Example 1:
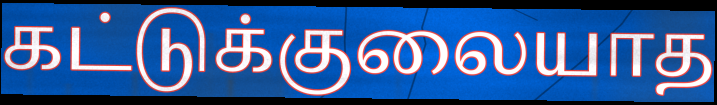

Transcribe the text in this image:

கட்டுக்குலையாத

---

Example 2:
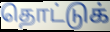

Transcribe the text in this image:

தொட்டுக்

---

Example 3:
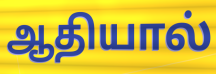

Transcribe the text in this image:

ஆதியால்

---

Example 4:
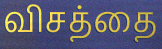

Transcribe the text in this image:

விசத்தை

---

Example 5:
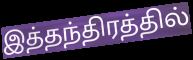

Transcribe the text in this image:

இத்தந்திரத்தில்